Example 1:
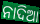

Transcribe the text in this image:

ନାଦିଆ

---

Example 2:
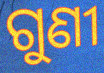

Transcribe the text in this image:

ଗୁଣୀ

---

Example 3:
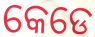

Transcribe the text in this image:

କେଡେ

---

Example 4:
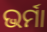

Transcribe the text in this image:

ଭର୍ମା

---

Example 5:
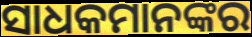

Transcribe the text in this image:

ସାଧକମାନଙ୍କର